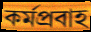
কর্মপ্রবাহ